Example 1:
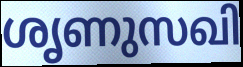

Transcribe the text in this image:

ശൃണുസഖി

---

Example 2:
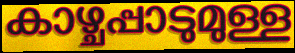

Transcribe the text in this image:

കാഴ്ചപ്പാടുമുള്ള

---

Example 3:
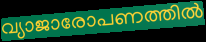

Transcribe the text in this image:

വ്യാജാരോപണത്തിൽ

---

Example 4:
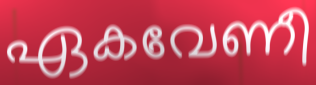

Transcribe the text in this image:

ഏകവേണീ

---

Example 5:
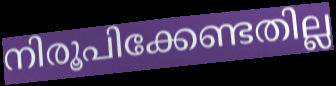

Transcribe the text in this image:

നിരൂപിക്കേണ്ടതില്ല